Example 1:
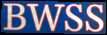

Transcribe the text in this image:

BWSS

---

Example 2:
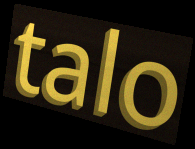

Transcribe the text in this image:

talo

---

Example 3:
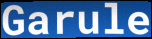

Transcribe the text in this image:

Garule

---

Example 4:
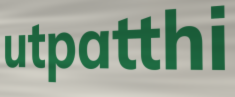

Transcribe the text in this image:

utpatthi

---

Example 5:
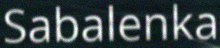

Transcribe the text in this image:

Sabalenka